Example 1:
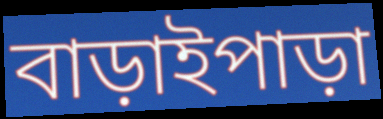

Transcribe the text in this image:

বাড়াইপাড়া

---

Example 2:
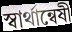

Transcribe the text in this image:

স্বার্থান্বেষী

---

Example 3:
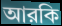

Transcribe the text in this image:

আরকি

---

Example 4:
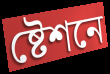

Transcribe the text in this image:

ষ্টেশনে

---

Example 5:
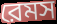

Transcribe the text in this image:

রেমস